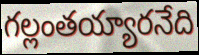
గల్లంతయ్యారనేది